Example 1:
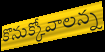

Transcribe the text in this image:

కొనుక్కోవాలన్న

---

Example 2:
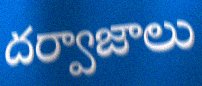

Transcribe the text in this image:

దర్వాజాలు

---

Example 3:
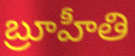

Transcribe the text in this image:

బ్రూహీతి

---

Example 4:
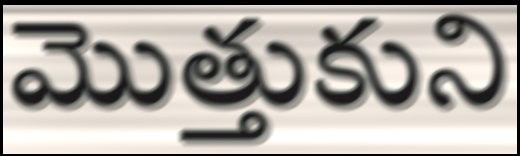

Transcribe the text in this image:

మొత్తుకుని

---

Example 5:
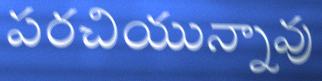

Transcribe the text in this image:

పరచియున్నావు